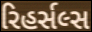
રિહર્સલ્સ